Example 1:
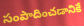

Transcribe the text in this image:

సంపాదించడానికే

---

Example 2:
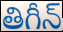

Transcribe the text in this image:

తిగీన్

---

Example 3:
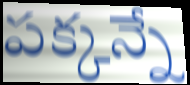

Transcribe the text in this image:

పక్కన్నే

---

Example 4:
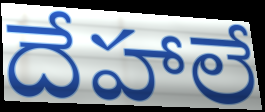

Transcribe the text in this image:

దేహాలే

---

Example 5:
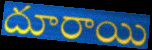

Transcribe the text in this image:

దూరాయి